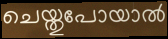
ചെയ്തുപോയാൽ